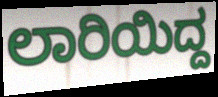
ಲಾರಿಯಿದ್ದ